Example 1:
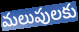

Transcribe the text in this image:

మలుపులకు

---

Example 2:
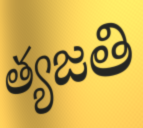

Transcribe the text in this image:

త్యజతి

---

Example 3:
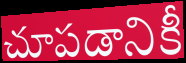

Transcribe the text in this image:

చూపడానికీ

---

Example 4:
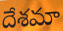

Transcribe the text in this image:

దేశమా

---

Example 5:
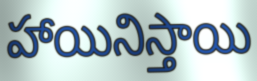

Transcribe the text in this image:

హాయినిస్తాయి